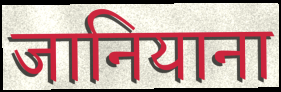
जानियाना